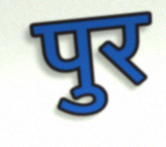
पुर